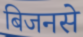
बिजनसे